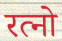
रत्नो